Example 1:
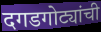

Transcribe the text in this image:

दगडगोट्यांची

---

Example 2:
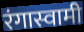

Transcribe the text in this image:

रंगास्वामी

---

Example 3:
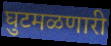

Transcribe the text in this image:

घुटमळणारी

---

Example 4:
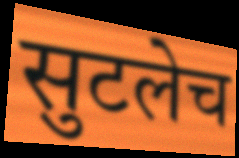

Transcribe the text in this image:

सुटलेच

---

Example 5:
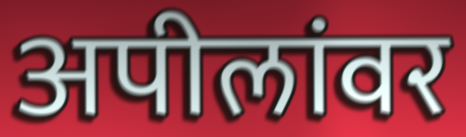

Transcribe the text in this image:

अपीलांवर